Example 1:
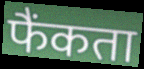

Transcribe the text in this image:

फैंकता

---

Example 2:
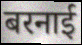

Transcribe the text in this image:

बरनाई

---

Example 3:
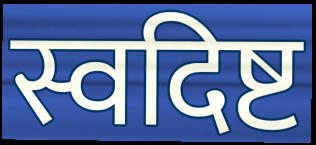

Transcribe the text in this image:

स्वदिष्ट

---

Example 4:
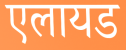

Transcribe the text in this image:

एलायड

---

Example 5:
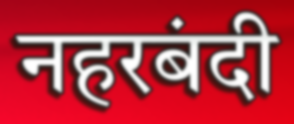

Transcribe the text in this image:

नहरबंदी